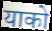
याको